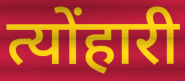
त्योंहारी